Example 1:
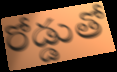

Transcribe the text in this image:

రోడ్డుతో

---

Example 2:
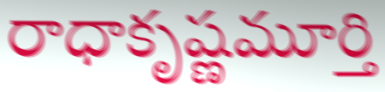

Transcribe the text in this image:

రాధాకృష్ణమూర్తి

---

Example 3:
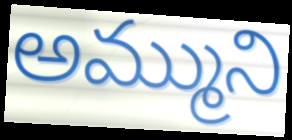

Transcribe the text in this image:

అమ్ముని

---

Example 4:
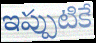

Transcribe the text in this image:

ఇప్పుటికే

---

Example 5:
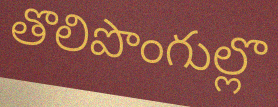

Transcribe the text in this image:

తొలిపొంగుల్లొ